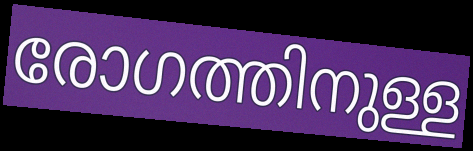
രോഗത്തിനുള്ള